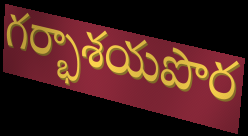
గర్భాశయపొర